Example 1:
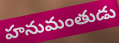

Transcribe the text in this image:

హనుమంతుడు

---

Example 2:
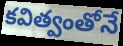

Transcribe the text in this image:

కవిత్వంతోనే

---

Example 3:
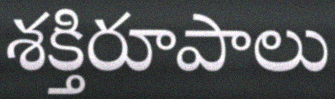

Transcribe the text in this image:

శక్తిరూపాలు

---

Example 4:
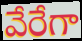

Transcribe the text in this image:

వేరేగా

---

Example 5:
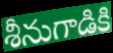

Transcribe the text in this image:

శీనుగాడికి